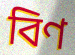
বিণ